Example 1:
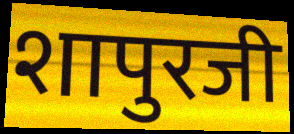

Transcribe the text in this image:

शापुरजी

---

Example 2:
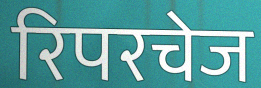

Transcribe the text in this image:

रिपरचेज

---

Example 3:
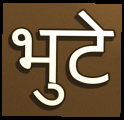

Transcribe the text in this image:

भुटे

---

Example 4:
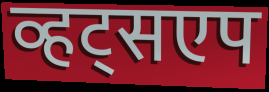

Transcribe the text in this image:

व्हट्सएप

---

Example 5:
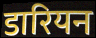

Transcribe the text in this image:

डारियन